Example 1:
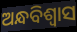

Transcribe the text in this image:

ଅନ୍ଧବିଶ୍ବାସ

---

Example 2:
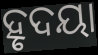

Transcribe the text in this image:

ହୃଦୟା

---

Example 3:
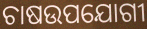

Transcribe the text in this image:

ଚାଷଉପଯୋଗୀ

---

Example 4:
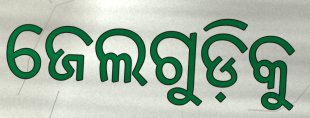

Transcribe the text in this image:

ଜେଲଗୁଡ଼ିକୁ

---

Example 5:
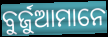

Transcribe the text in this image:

ବୁର୍ଜୁଆମାନେ